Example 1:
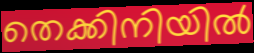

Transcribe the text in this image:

തെക്കിനിയിൽ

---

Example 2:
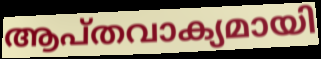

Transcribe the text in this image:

ആപ്തവാക്യമായി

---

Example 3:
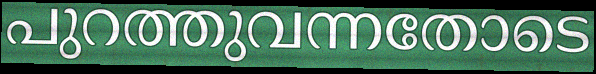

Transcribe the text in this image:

പുറത്തുവന്നതോടെ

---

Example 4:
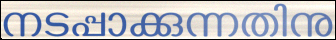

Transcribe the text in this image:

നടപ്പാക്കുന്നതിനു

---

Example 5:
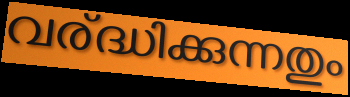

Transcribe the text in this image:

വര്ദ്ധിക്കുന്നതും